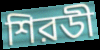
শিরডী